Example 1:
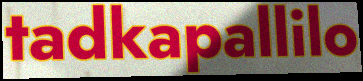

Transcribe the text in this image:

tadkapallilo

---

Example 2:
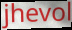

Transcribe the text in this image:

jhevol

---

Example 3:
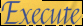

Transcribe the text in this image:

Execute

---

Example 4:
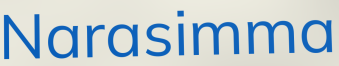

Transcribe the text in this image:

Narasimma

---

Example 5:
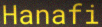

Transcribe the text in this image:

Hanafi